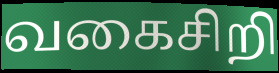
வகைசிறி